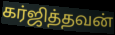
கர்ஜித்தவன்